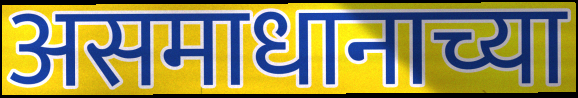
असमाधानाच्या